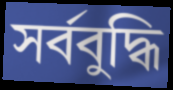
সৰ্ববুদ্ধি